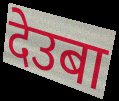
देउबा